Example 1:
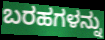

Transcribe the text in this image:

ಬರಹಗಳನ್ನು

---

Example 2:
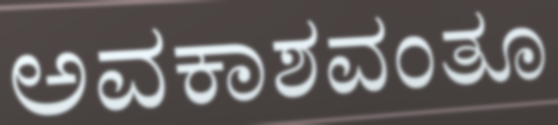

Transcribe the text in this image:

ಅವಕಾಶವಂತೂ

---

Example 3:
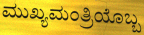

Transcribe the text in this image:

ಮುಖ್ಯಮಂತ್ರಿಯೊಬ್ಬ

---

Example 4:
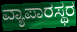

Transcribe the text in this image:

ವ್ಯಾಪಾರಸ್ಥರ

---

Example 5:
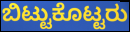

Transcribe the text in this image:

ಬಿಟ್ಟುಕೊಟ್ಟರು